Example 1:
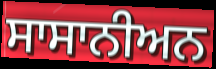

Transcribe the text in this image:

ਸਾਸਾਨੀਅਨ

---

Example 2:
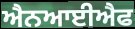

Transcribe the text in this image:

ਐਨਆਈਐਫ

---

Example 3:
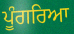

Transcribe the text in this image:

ਪੂੰਗਰਿਆ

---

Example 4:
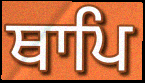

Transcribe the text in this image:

ਥਾਪਿ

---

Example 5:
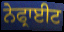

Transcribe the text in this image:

ਨੇਫ੍ਰਾਈਟ